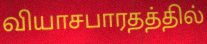
வியாசபாரதத்தில்